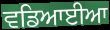
ਵਡਿਆਈਆ